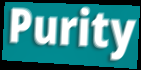
Purity